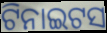
ଟିନାଇଟସ